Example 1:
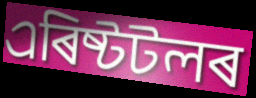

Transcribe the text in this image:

এৰিষ্টটলৰ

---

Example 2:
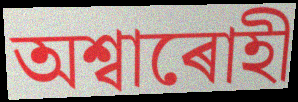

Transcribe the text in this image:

অশ্বাৰোহী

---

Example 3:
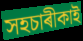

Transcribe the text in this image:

সহচাৰীকাই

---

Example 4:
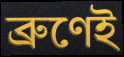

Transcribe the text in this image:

ব্ৰুণেই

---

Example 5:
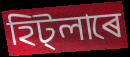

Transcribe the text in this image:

হিট্‌লাৰে